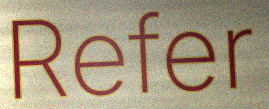
Refer